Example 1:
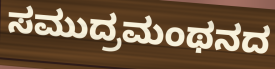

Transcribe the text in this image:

ಸಮುದ್ರಮಂಥನದ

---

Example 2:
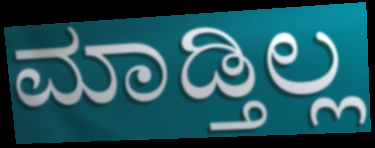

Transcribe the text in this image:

ಮಾಡ್ತಿಲ್ಲ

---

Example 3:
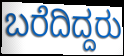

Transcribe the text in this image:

ಬರೆದಿದ್ದರು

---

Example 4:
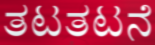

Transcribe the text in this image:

ತಟತಟನೆ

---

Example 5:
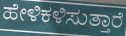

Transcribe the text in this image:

ಹೇಳಿಕಳಿಸುತ್ತಾರೆ